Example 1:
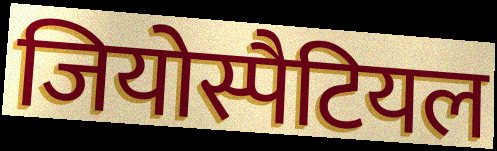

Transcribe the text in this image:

जियोस्पैटियल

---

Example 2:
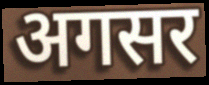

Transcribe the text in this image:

अगसर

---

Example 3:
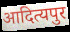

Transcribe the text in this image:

आदित्यपुर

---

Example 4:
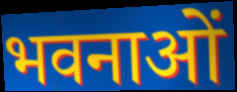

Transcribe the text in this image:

भवनाओं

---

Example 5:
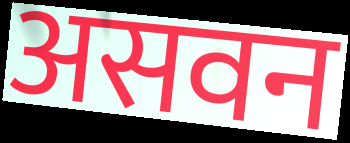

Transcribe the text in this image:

असवन